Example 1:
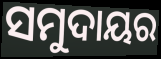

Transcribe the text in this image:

ସମୁଦାୟର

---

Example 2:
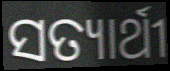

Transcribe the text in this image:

ସତ୍ୟାର୍ଥୀ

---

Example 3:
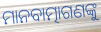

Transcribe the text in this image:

ମାନବାତ୍ମାଗଣଙ୍କୁ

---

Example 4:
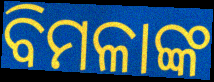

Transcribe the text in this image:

ବିମଳାଙ୍କ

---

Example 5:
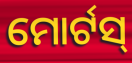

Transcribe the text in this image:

ମୋର୍ଟସ୍